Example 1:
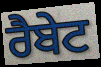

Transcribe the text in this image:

ਰੈਬੇਟ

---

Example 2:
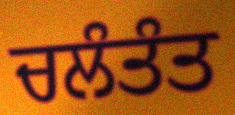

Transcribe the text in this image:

ਚਲੰਤੰਤ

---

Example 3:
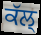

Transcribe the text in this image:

ਕੱਲ੍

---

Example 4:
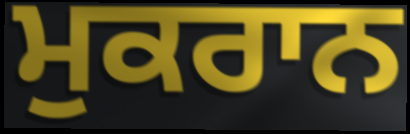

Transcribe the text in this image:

ਮੁਕਰਾਨ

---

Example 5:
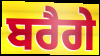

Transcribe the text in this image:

ਬਰੈਗੇ